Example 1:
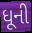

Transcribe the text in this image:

ધૂની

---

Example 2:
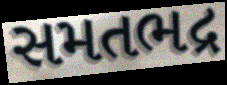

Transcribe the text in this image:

સમતભદ્ર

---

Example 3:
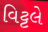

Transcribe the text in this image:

વિટ્ટલે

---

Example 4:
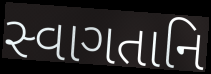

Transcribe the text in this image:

સ્વાગતાનિ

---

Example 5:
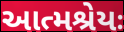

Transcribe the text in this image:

આત્મશ્રેયઃ